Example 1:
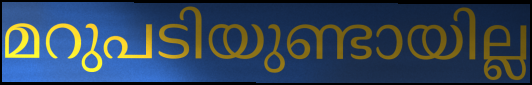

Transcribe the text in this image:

മറുപടിയുണ്ടായില്ല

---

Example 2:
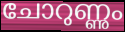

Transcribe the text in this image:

ചോറുണ്ണും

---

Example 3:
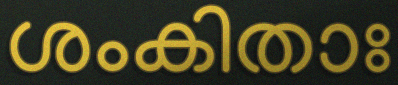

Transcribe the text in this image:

ശംകിതാഃ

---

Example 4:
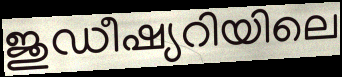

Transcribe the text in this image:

ജുഡീഷ്യറിയിലെ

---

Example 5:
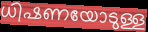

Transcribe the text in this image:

ധിഷണയോടുള്ള